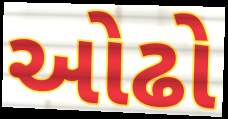
ઓઢો